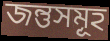
জন্তুসমূহ